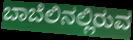
ಬಾಬೆಲಿನಲ್ಲಿರುವ